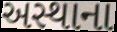
અસ્થાના